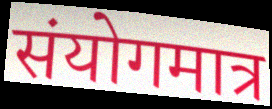
संयोगमात्र